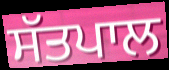
ਸੱਤਪਾਲ